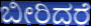
ಬೀರಿದರೆ